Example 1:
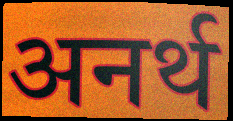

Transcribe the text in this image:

अनर्थ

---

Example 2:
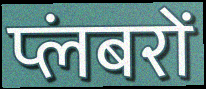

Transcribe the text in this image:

प्लंबरों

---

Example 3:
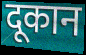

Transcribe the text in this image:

दूकान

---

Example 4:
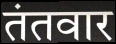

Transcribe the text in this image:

तंतवार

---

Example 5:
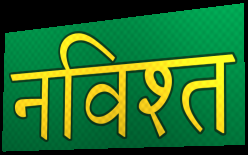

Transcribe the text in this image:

नविश्त